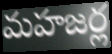
మహజర్ల